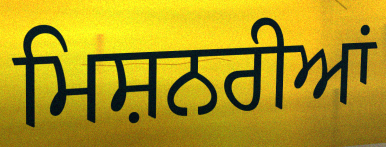
ਮਿਸ਼ਨਰੀਆਂ